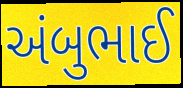
અંબુભાઈ